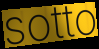
sotto